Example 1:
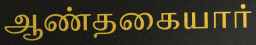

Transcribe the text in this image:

ஆண்தகையார்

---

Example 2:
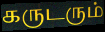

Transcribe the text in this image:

கருடரும்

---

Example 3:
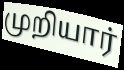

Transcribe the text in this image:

முறியார்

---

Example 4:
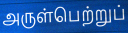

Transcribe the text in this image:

அருள்பெற்றுப்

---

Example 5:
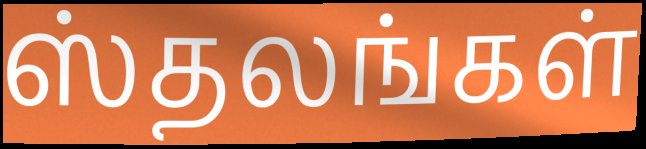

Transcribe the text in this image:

ஸ்தலங்கள்